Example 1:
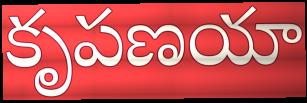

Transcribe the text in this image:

కృపణయా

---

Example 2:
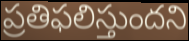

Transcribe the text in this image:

ప్రతిఫలిస్తుందని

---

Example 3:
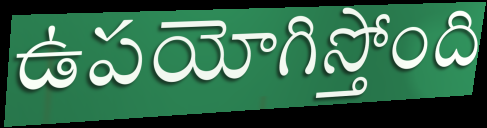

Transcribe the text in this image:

ఉపయోగిస్తోంది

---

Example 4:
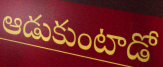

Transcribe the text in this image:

ఆడుకుంటాడో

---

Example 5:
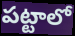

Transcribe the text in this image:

పట్టాలో